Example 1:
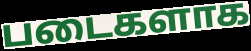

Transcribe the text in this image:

படைகளாக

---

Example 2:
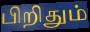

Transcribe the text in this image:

பிறிதும்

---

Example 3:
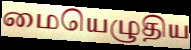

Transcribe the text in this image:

மையெழுதிய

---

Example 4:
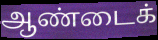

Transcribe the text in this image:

ஆண்டைக்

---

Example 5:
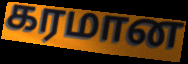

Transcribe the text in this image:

கரமான